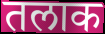
तलाक